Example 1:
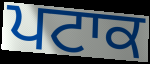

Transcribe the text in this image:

ਪਟਾਕ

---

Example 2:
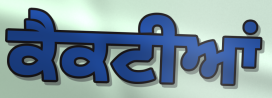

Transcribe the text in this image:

ਕੈਕਟੀਆਂ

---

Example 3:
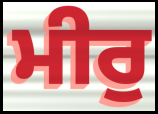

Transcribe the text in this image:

ਮੀਰੁ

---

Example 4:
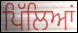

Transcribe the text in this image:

ਪਿੱਲਿਆਂ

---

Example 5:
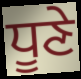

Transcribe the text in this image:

ਧੂਣੇ